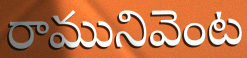
రామునివెంట